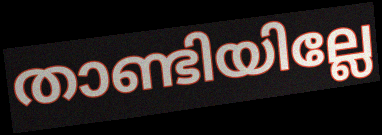
താണ്ടിയില്ലേ